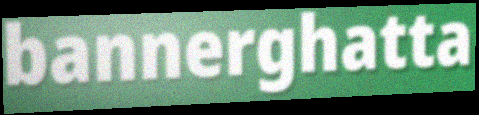
bannerghatta